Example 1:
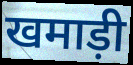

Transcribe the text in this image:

खमाड़ी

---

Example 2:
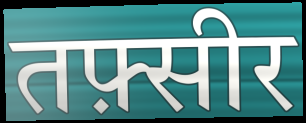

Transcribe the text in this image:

तफ़्सीर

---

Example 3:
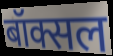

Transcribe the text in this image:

बॉक्सल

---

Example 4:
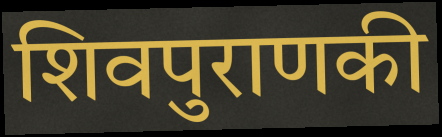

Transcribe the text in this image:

शिवपुराणकी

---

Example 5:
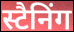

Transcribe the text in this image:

स्टैनिंग